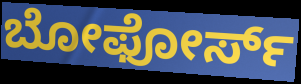
ಬೋಫೋರ್ಸ್